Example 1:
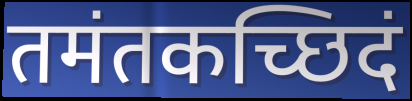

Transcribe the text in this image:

तमंतकच्छिदं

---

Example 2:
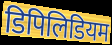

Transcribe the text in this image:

डिपिलिडियम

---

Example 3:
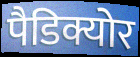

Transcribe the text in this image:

पैडिक्योर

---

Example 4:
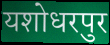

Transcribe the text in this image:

यशोधरपुर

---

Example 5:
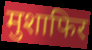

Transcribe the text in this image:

मुशाफिर